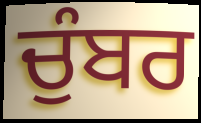
ਚੁੰਬਰ